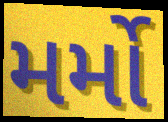
મર્મો